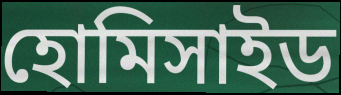
হোমিসাইড